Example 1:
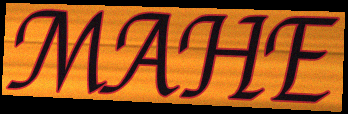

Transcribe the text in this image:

MAHE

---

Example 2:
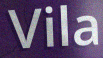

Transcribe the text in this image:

Vila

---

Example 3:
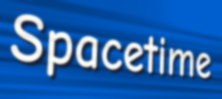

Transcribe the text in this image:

Spacetime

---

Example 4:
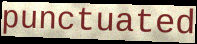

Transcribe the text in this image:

punctuated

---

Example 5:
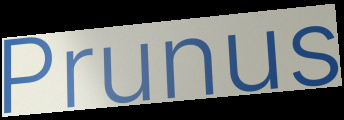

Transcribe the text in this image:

Prunus